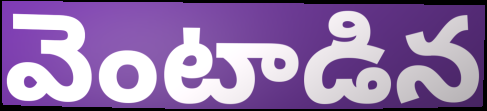
వెంటాడిన